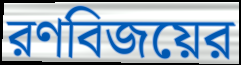
রণবিজয়ের